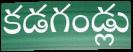
కడగండ్లు